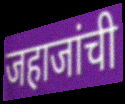
जहाजांची